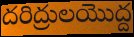
దరిద్రులయొద్ద